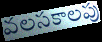
వలసకాలపు